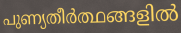
പുണ്യതീർത്ഥങ്ങളിൽ